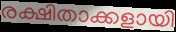
രക്ഷിതാക്കളായി